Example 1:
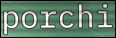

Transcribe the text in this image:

porchi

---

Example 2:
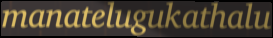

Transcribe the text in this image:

manatelugukathalu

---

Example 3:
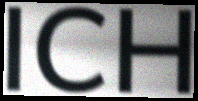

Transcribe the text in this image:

ICH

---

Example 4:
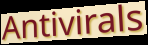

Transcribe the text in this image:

Antivirals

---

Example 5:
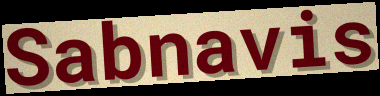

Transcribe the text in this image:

Sabnavis